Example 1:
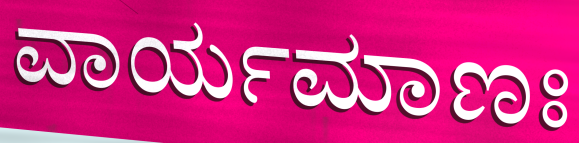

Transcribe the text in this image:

ವಾರ್ಯಮಾಣಃ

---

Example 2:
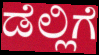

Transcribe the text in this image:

ಡೆಲ್ಲಿಗೆ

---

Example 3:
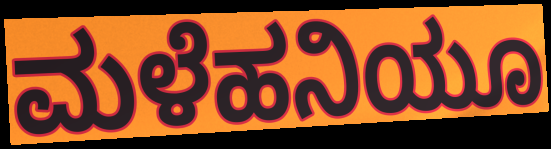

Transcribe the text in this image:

ಮಳೆಹನಿಯೂ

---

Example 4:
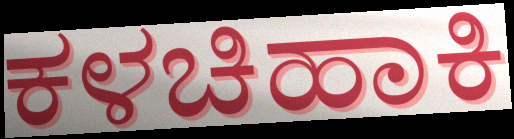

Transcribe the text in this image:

ಕಳಚಿಹಾಕಿ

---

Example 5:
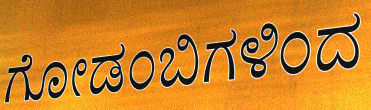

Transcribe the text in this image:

ಗೋಡಂಬಿಗಳಿಂದ